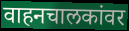
वाहनचालकांवर